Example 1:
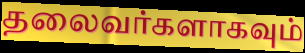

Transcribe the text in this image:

தலைவர்களாகவும்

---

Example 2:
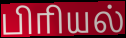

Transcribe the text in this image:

பிரியல்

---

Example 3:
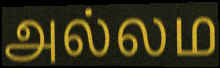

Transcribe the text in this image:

அல்லம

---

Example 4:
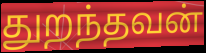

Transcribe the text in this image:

துறந்தவன்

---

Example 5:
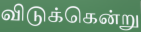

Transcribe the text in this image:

விடுக்கென்று